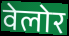
वेलोर